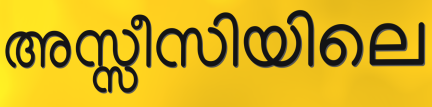
അസ്സീസിയിലെ